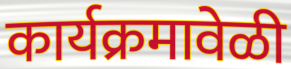
कार्यक्रमावेळी